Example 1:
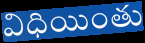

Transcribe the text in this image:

విధియింతు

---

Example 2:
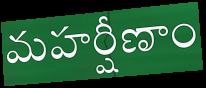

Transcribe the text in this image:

మహర్షీణాం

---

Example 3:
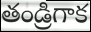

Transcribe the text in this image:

తండ్రిగాక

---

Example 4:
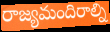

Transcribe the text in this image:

రాజ్యమందిరాల్ని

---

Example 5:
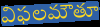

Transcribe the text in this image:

విఫలమౌతూ